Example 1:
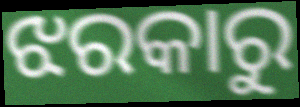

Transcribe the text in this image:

ଝରକାରୁ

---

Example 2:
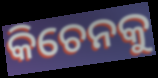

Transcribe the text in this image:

କିଚେନକୁ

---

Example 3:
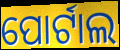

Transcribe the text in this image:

ପୋର୍ଟାଲ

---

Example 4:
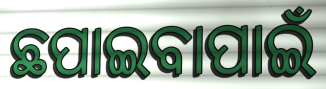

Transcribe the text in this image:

ଛପାଇବାପାଇଁ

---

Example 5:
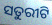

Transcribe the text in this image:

ସତୁରୀଟି